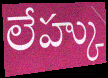
లేహ్కు